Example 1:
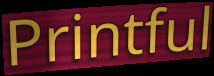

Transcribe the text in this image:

Printful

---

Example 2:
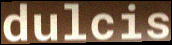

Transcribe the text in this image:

dulcis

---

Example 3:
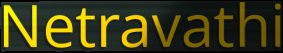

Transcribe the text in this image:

Netravathi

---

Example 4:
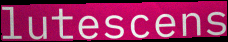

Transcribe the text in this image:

lutescens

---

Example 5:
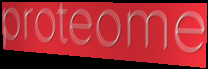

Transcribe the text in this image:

proteome